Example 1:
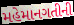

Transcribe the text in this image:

મહેમાનગતીની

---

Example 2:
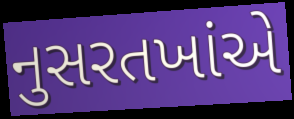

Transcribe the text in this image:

નુસરતખાંએ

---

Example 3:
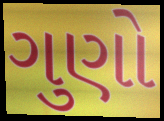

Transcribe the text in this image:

ગુણો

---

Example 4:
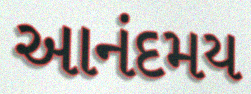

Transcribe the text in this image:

આનંદમય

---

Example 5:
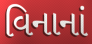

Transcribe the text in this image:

વિનાનાં